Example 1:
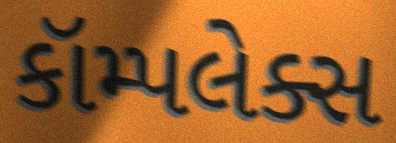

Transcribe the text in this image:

કૉમ્પલેક્સ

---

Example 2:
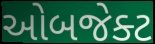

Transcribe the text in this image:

ઓબજેક્ટ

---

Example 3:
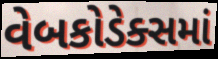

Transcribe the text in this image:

વેબકોડેક્સમાં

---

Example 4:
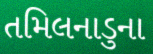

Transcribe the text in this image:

તમિલનાડુના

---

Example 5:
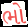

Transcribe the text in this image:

ભો